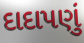
દાદાપણું